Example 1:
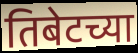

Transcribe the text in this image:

तिबेटच्या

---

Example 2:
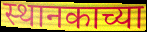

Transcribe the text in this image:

स्थानकाच्या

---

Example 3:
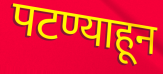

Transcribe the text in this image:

पटण्याहून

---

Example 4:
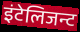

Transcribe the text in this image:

इंटेलिजन्ट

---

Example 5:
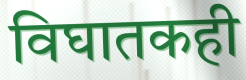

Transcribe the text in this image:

विघातकही